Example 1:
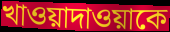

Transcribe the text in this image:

খাওয়াদাওয়াকে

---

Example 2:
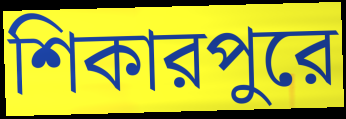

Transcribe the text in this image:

শিকারপুরে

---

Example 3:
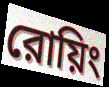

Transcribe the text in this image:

রোয়িং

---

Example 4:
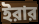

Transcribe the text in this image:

ইরার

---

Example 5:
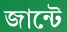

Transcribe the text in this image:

জান্টে